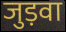
जुड़वा